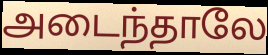
அடைந்தாலே